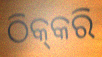
ଠିକ୍‍କରି